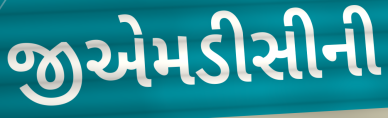
જીએમડીસીની